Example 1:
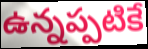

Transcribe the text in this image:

ఉన్నప్పటికే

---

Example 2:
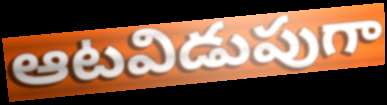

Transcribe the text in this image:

ఆటవిడుపుగా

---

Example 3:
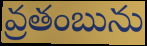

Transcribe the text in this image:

వ్రతంబును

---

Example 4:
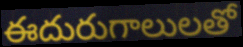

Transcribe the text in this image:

ఈదురుగాలులతో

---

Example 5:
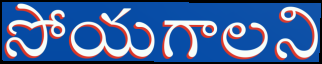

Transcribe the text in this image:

సోయగాలని